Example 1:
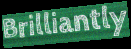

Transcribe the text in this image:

Brilliantly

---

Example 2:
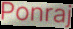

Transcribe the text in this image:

Ponraj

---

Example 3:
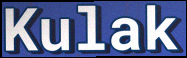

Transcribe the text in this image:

Kulak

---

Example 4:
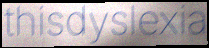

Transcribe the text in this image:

thisdyslexia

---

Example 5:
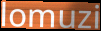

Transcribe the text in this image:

lomuzi